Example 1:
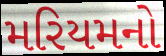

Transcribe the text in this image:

મરિયમનો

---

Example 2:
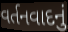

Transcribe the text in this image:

વર્તનવાદનું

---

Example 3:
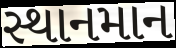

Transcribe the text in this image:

સ્થાનમાન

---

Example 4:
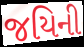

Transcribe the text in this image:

જયિની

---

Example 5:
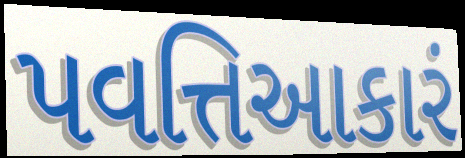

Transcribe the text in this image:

પવત્તિઆકારં